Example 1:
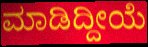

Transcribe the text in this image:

ಮಾಡಿದ್ದೀಯೆ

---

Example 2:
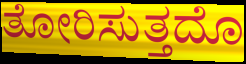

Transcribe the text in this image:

ತೋರಿಸುತ್ತದೊ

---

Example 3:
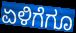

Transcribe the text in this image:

ಏಳಿಗೆಗೂ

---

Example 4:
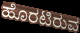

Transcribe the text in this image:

ಹೊರಟಿರುವ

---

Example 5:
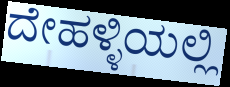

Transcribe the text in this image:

ದೇಹಳ್ಳಿಯಲ್ಲಿ